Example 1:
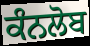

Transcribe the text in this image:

ਕੰਨਲੋਬ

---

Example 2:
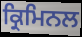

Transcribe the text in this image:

ਕ੍ਰਿਮਿਨਲ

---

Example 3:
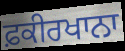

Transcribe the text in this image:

ਫ਼ਕੀਰਖਾਨਾ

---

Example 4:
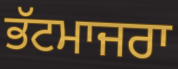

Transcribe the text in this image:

ਭੱਟਮਾਜਰਾ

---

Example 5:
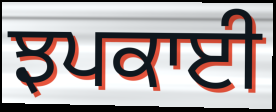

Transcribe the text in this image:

ਝਪਕਾਈ